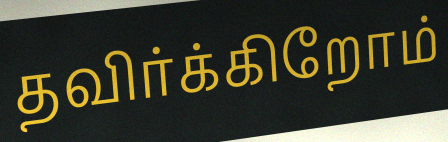
தவிர்க்கிறோம்